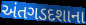
અંતગડદશાના